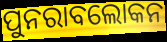
ପୁନରାବଲୋକନ